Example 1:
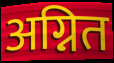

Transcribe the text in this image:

अग्नित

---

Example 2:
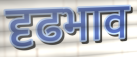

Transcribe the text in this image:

दृढभाव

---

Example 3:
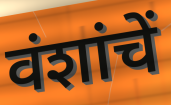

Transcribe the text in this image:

वंशांचें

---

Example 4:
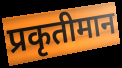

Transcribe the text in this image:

प्रकृतीमान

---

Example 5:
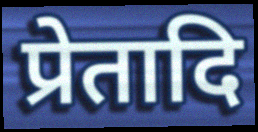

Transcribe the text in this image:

प्रेतादि